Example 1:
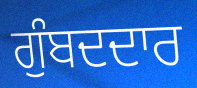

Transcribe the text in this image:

ਗੁੰਬਦਦਾਰ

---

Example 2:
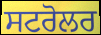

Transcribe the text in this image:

ਸਟਰੋਲਰ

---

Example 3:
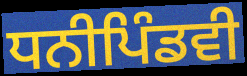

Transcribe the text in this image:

ਧਨੀਪਿੰਡਵੀ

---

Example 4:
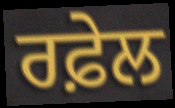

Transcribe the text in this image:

ਰਫ਼ੇਲ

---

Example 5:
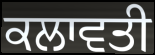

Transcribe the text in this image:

ਕਲਾਵਤੀ